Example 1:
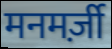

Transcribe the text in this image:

मनमर्ज़ी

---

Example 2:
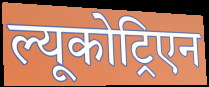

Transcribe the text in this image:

ल्यूकोट्रिएन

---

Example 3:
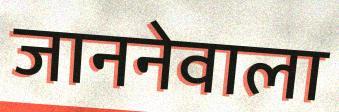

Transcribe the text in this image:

जाननेवाला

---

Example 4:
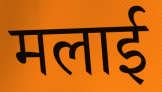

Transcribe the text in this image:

मलाई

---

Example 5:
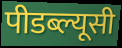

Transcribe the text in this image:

पीडब्ल्यूसी